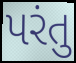
પરંતુ